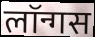
लॉन्गस